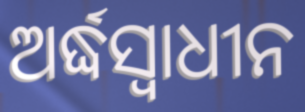
ଅର୍ଦ୍ଧସ୍ୱାଧୀନ